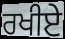
ਰਖੀਏ